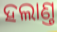
ହଲାଣ୍ତ